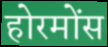
होरमोंस